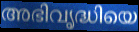
അഭിവൃദ്ധിയെ